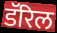
डॅरिल